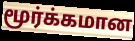
மூர்க்கமான